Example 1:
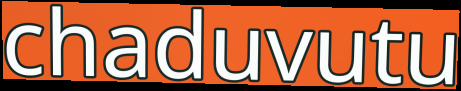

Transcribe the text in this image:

chaduvutu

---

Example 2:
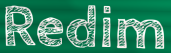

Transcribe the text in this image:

Redim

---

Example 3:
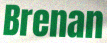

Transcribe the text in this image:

Brenan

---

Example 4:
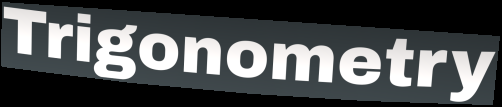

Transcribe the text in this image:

Trigonometry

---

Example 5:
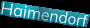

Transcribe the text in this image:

Haimendorf